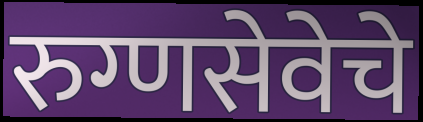
रुग्णसेवेचे